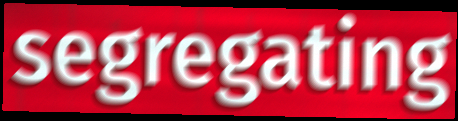
segregating